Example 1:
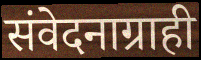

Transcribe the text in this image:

संवेदनाग्राही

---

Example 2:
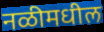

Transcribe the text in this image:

नळीमधील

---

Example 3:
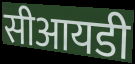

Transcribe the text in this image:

सीआयडी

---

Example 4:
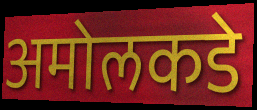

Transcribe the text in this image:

अमोलकडे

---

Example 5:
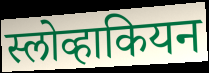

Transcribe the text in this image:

स्लोव्हाकियन